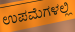
ಉಪಮೆಗಳಲ್ಲಿ